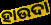
ହାଉଦା